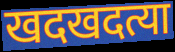
खदखदत्या